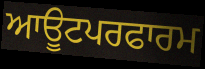
ਆਊਟਪਰਫਾਰਮ